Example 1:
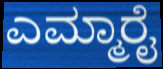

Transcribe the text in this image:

ಎಮ್ಮಾರೈ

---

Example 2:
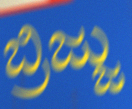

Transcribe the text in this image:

ಬ್ರಿಜ್ಜು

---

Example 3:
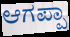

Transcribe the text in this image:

ಆಗಪ್ಪಾ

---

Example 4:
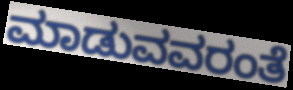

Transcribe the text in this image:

ಮಾಡುವವರಂತೆ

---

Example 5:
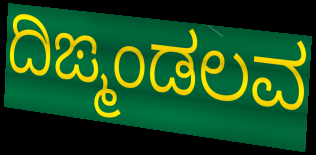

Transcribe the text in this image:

ದಿಙ್ಮಂಡಲವ